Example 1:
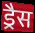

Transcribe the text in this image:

ड्रैस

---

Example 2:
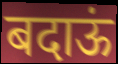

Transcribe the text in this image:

बदाऊं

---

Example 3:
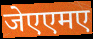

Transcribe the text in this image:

जेएएमए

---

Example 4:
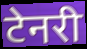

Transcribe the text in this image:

टेनरी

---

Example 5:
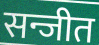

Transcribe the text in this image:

सन्जीत